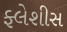
ફ્લેશીસ